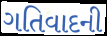
ગતિવાદની